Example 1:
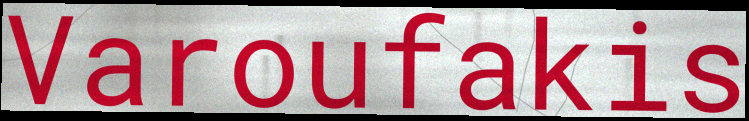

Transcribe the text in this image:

Varoufakis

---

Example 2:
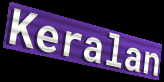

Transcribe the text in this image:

Keralan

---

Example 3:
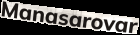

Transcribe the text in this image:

Manasarovar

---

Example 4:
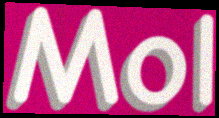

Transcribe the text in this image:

Mol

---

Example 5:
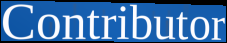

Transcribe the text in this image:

Contributor